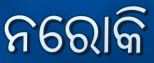
ନରୋକି